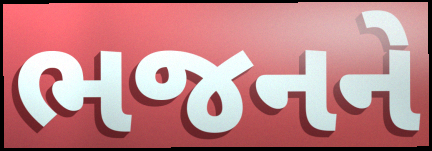
ભજનને